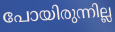
പോയിരുന്നില്ല